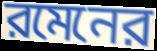
রমেনের